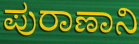
ಪುರಾಣಾನಿ